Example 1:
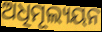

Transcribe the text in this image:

ଅଧିମୂଲ୍ୟୟନ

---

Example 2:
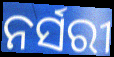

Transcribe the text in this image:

ନର୍ସରୀ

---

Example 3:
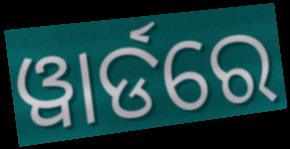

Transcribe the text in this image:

ୱାର୍ଡରେ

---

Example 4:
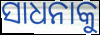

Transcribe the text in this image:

ସାଧନାକୁ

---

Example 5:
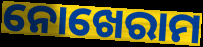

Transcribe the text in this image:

ନୋଖେରାମ